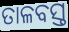
ତାଳବସ୍ତ